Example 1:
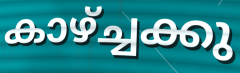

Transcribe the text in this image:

കാഴ്ച്ചക്കു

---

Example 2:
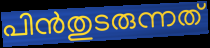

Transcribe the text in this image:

പിൻതുടരുന്നത്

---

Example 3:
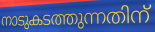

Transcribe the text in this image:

നാടുകടത്തുന്നതിന്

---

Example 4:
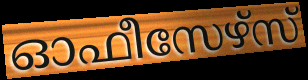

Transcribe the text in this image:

ഓഫീസേഴ്സ്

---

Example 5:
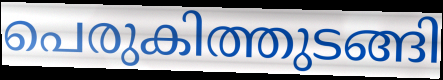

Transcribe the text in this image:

പെരുകിത്തുടങ്ങി